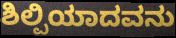
ಶಿಲ್ಪಿಯಾದವನು